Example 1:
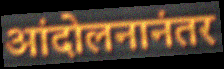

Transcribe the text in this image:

आंदोलनानंतर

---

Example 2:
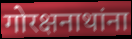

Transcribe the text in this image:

गोरक्षनाथांना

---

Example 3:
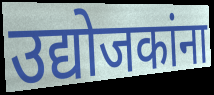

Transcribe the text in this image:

उद्योजकांना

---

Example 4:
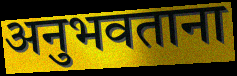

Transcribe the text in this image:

अनुभवताना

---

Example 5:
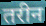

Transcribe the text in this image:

तरीन